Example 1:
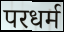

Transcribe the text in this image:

परधर्म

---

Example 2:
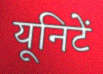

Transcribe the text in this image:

यूनिटें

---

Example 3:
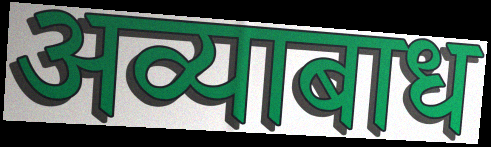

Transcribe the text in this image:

अव्याबाध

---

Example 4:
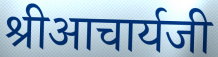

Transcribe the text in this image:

श्रीआचार्यजी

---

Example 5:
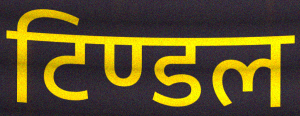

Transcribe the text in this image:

टिण्डल